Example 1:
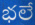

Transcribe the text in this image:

భలే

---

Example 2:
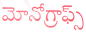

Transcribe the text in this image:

మోనోగ్రాఫ్స్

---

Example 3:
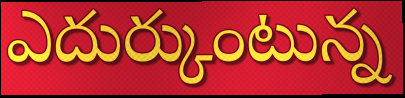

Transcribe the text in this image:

ఎదుర్కుంటున్న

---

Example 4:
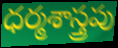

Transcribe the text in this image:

ధర్మశాస్త్రపు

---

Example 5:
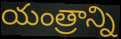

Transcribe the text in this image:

యంత్రాన్ని